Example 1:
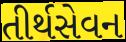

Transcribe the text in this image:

તીર્થસેવન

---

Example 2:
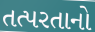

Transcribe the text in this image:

તત્પરતાનો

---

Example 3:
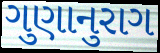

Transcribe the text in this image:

ગુણાનુરાગ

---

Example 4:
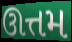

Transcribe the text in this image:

ઊત્તમ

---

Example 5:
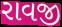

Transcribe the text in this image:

રાવજી